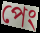
পেং